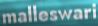
malleswari